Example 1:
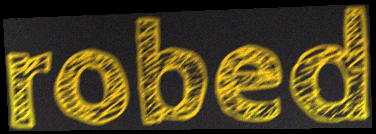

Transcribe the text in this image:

robed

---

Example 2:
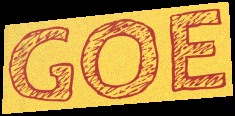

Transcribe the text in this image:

GOE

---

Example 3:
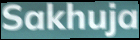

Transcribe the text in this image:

Sakhuja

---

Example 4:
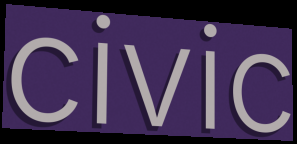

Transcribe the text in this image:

civic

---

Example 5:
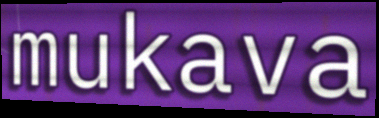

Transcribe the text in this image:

mukava